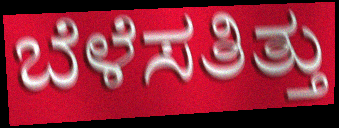
ಬೆಳೆಸತಿತ್ತು